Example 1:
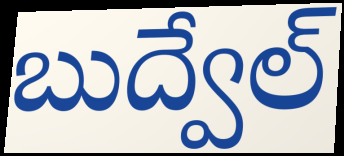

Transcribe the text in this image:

బుద్వేల్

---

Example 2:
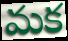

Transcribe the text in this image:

మక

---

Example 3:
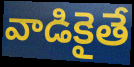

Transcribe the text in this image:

వాడికైతే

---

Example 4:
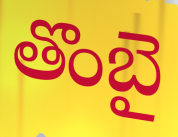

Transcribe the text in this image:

తొంబై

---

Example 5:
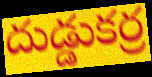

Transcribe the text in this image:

దుడ్డుకర్ర